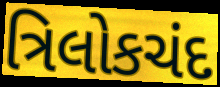
ત્રિલોકચંદ